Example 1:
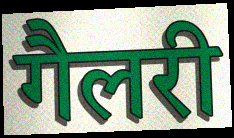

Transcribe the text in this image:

गैलरी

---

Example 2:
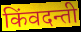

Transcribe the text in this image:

किंवदन्ती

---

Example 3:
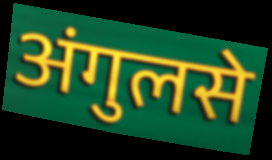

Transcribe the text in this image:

अंगुलसे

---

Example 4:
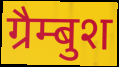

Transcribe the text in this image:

ग्रैम्बुश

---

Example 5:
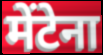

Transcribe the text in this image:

मेंटेना